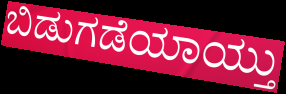
ಬಿಡುಗಡೆಯಾಯ್ತು